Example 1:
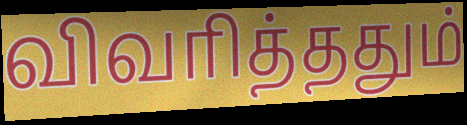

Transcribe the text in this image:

விவரித்ததும்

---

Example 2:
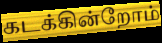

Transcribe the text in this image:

கடக்கின்றோம்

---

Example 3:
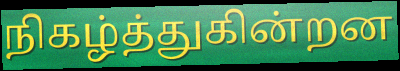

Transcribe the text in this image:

நிகழ்த்துகின்றன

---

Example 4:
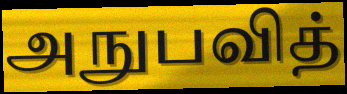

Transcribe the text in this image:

அநுபவித்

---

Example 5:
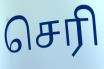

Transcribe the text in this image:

செரி